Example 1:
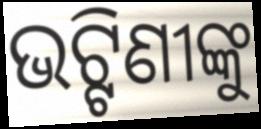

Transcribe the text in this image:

ଭଟ୍ଟିଣୀଙ୍କୁ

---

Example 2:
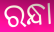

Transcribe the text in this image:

ରନ୍ଧା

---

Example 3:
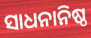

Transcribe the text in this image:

ସାଧନାନିଷ୍ଠ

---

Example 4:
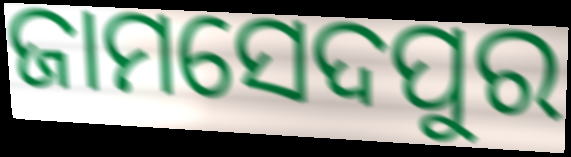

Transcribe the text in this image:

ଜାମସେଦପୁର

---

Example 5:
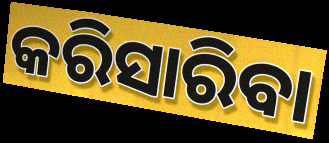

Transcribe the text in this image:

କରିସାରିବା